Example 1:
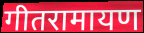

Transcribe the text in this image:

गीतरामायण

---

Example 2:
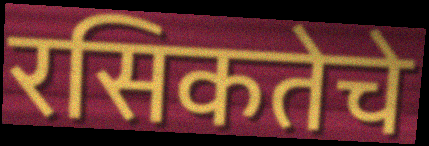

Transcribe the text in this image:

रसिकतेचे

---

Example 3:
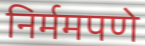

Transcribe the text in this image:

निर्ममपणे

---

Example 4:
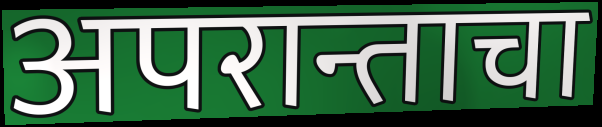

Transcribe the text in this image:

अपरान्ताचा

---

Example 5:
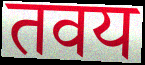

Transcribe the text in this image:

तवय